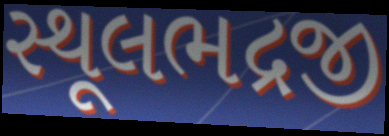
સ્થૂલભદ્રજી